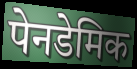
पेनडेमिक